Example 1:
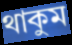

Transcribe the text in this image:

থাকুম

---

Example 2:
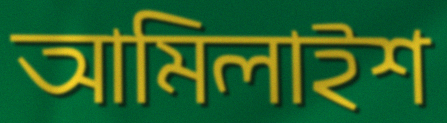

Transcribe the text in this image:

আমিলাইশ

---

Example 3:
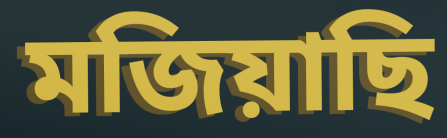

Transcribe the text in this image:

মজিয়াছি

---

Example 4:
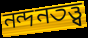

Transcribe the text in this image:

নন্দনতত্ত্ব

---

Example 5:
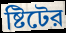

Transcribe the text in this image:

ষ্টিটের